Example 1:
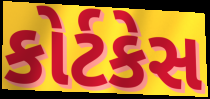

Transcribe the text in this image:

કોર્ટકેસ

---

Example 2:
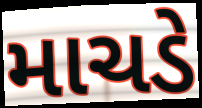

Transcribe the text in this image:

માચડે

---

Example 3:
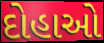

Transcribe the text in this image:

દોહાઓ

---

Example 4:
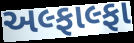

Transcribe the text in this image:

અલ્ફાલ્ફા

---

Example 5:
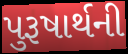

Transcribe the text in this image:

પુરૂષાર્થની